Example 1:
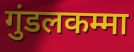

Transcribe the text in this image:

गुंडलकम्मा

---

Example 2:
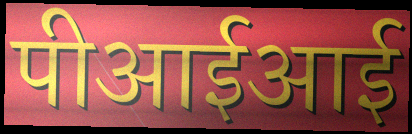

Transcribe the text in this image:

पीआईआई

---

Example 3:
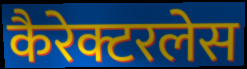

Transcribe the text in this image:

कैरेक्टरलेस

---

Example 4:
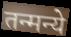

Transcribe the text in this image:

तन्मन्ये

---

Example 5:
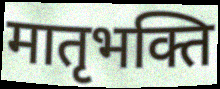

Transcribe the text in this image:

मातृभक्ति